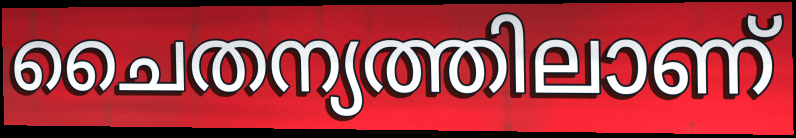
ചൈതന്യത്തിലാണ്